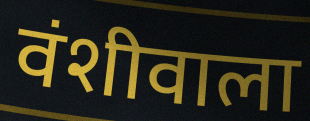
वंशीवाला